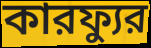
কারফ্যুর